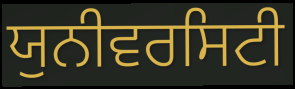
ਯੁਨੀਵਰਸਿਟੀ